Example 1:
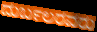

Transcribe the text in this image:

ದುರ್ಬಲರವರು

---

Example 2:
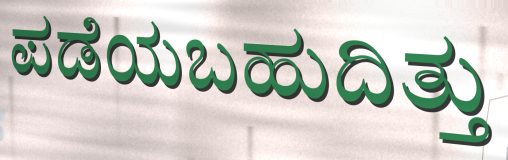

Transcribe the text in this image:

ಪಡೆಯಬಹುದಿತ್ತು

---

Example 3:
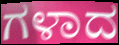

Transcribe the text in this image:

ಗಳಾದ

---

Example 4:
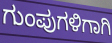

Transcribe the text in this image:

ಗುಂಪುಗಳಿಗಾಗಿ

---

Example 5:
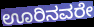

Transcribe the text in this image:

ಊರಿನವರೇ